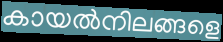
കായൽനിലങ്ങളെ